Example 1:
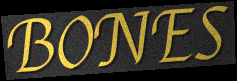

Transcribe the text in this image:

BONES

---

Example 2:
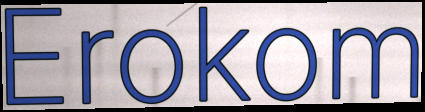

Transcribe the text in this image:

Erokom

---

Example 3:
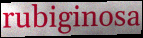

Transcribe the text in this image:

rubiginosa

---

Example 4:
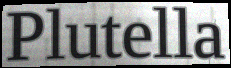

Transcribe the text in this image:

Plutella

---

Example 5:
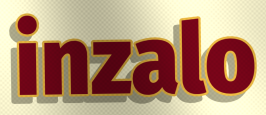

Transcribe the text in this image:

inzalo